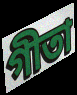
গীতা